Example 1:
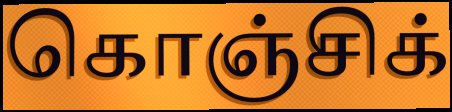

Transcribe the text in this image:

கொஞ்சிக்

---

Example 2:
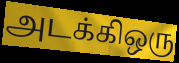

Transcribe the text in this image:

அடக்கிஒரு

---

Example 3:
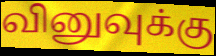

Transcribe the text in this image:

வினுவுக்கு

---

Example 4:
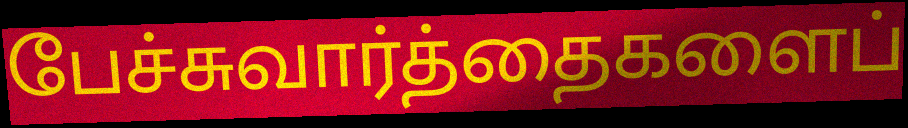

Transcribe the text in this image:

பேச்சுவார்த்தைகளைப்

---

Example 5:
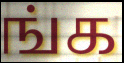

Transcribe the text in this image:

ங்க